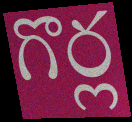
గొర్ల